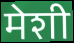
मेशी